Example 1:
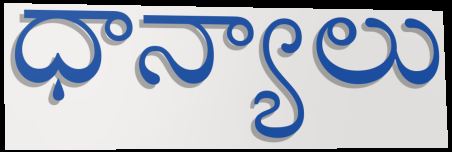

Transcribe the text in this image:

ధాన్యాలు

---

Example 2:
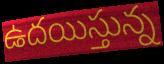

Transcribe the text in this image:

ఉదయిస్తున్న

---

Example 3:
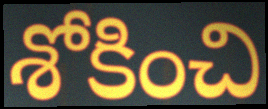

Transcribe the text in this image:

శోకించి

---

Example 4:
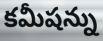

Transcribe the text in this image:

కమీషన్ను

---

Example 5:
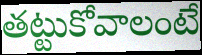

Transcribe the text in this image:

తట్టుకోవాలంటే